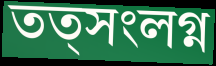
তত্সংলগ্ন